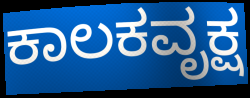
ಕಾಲಕವೃಕ್ಷ